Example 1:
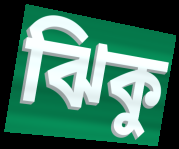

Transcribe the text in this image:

ঝিকু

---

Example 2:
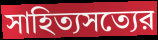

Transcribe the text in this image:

সাহিত্যসত্যের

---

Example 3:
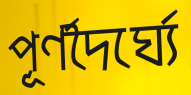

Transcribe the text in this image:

পূর্ণদৈর্ঘ্যে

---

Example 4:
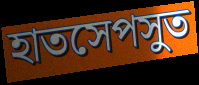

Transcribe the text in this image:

হাতসেপসুত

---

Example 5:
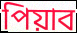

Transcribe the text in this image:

পিয়াব